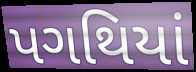
પગથિયાં